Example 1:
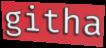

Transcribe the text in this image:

githa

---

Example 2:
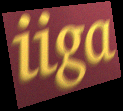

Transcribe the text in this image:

iiga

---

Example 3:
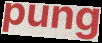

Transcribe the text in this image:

pung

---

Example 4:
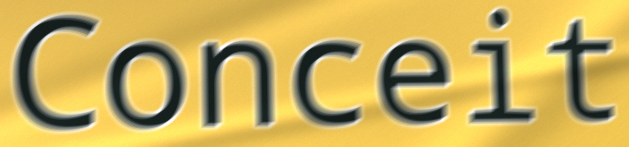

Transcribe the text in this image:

Conceit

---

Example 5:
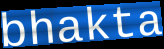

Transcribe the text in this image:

bhakta